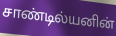
சாண்டில்யனின்